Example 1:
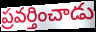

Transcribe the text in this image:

ప్రవర్తించాడు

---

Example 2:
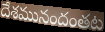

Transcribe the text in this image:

దేశమునందంతట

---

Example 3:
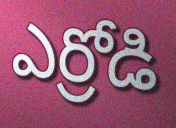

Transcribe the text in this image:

ఎర్రోడి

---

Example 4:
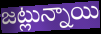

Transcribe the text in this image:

జట్లున్నాయి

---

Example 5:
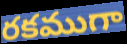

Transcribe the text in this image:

రకముగా